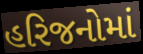
હરિજનોમાં